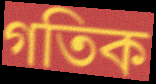
গতিক